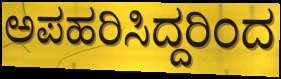
ಅಪಹರಿಸಿದ್ದರಿಂದ